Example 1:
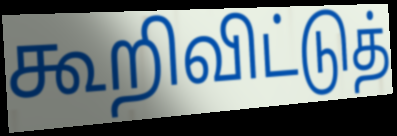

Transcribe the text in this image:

கூறிவிட்டுத்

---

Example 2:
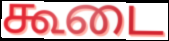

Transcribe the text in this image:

கூடை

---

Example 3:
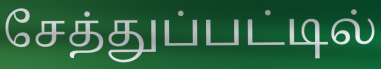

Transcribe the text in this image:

சேத்துப்பட்டில்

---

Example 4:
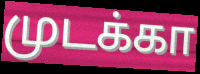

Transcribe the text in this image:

முடக்கா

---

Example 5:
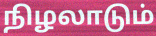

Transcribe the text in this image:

நிழலாடும்